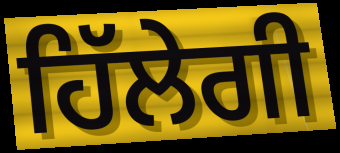
ਹਿੱਲੇਗੀ